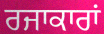
ਰਜਾਕਾਰਾਂ